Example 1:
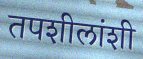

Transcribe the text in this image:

तपशीलांशी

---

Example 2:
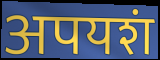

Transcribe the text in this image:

अपयशं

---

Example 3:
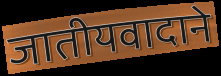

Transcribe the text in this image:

जातीयवादाने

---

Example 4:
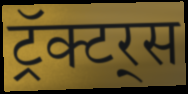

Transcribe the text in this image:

ट्रॅक्टर्स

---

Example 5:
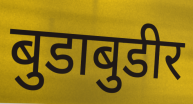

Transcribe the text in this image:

बुडाबुडीर